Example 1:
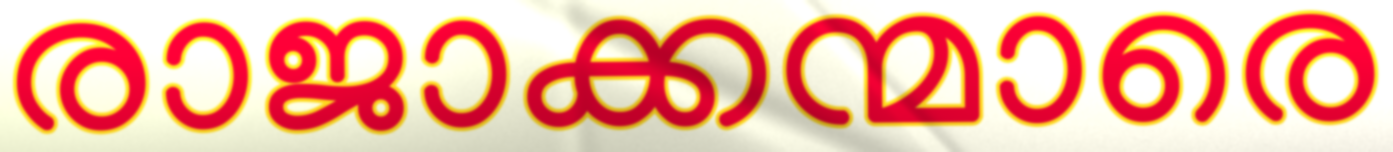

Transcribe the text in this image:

രാജാക്കന്മാരെ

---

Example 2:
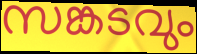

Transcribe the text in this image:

സങ്കടവും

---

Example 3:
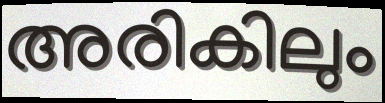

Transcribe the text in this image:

അരികിലും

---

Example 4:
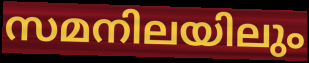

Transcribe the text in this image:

സമനിലയിലും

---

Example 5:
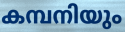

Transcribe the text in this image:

കമ്പനിയും